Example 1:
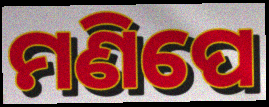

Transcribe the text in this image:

ମଣିପେ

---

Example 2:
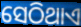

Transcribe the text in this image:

ସେଠିଥାଏ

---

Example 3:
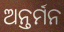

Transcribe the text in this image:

ଅନ୍ତର୍ମନ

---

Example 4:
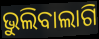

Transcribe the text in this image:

ଭୁଲିବାଲାଗି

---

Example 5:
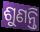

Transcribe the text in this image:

ଶୁଣନ୍ତି